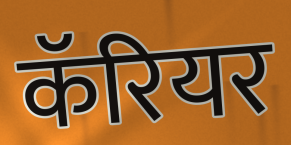
कॅरियर